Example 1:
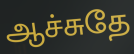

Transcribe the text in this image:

ஆச்சுதே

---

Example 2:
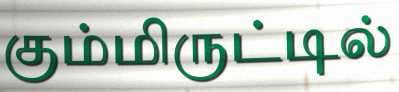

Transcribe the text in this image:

கும்மிருட்டில்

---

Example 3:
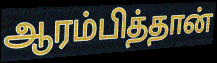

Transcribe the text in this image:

ஆரம்பித்தான்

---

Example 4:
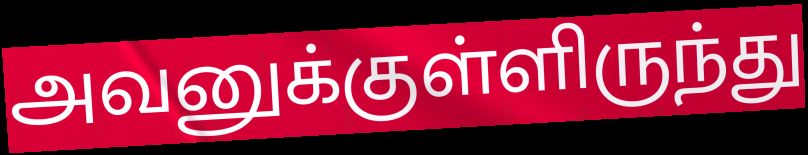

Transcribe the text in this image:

அவனுக்குள்ளிருந்து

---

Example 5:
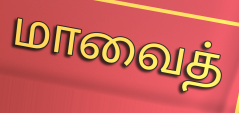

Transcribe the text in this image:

மாவைத்